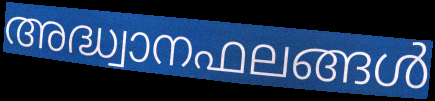
അദ്ധ്വാനഫലങ്ങൾ